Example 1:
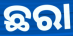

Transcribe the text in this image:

ଛରା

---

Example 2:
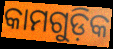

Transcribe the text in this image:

କାମଗୁଡ଼ିକ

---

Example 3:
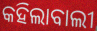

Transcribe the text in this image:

କହିଲାବାଲୀ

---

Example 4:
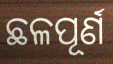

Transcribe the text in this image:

ଛଳପୂର୍ଣ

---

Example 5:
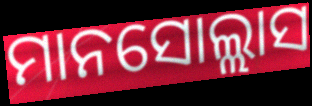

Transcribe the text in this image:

ମାନସୋଲ୍ଲାସ